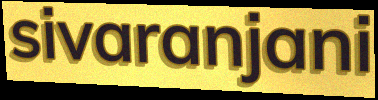
sivaranjani